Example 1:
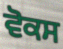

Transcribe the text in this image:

ਵੋਕਸ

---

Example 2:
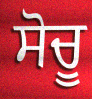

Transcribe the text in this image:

ਸੋਚੂ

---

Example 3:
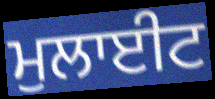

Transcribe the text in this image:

ਮੁਲਾਈਟ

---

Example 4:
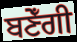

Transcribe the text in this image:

ਬਣੇਁਗੀ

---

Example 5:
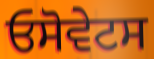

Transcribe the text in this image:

ਓਸੋਵੇਟਸ